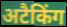
अटैकिंग